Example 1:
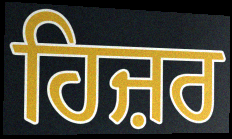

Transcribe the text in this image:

ਹਿਜ਼ਰ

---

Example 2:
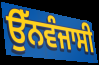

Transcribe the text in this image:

ਉੱਨਵੰਜਾਸੀ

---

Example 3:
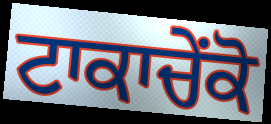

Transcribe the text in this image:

ਟਾਕਾਚੇਂਕੋ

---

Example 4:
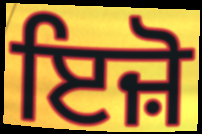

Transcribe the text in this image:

ਇਜ਼ੋ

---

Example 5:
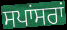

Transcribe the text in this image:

ਸਪਾਂਸਰਾਂ